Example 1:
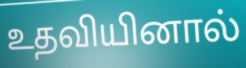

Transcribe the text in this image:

உதவியினால்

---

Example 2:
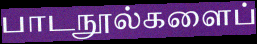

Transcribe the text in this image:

பாடநூல்களைப்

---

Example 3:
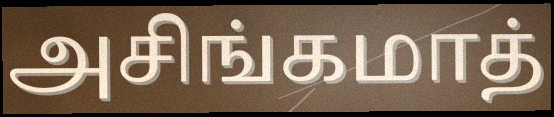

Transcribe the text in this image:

அசிங்கமாத்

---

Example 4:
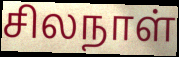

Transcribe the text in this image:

சிலநாள்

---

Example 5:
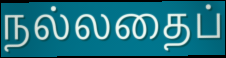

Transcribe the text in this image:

நல்லதைப்